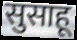
सुसाहू